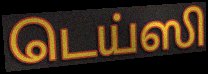
டெய்ஸி